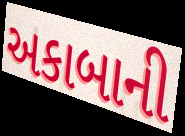
અકાબાની